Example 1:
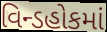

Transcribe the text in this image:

વિન્ડહોકમાં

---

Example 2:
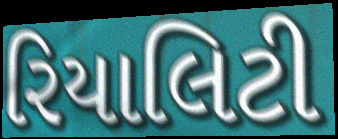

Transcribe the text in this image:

રિયાલિટી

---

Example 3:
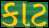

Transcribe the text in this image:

કાટ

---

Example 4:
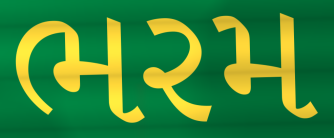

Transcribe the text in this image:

ભરમ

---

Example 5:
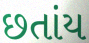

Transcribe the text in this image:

છતાંય